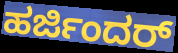
ಹರ್ಜಿಂದರ್